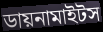
ডায়নামাইটস